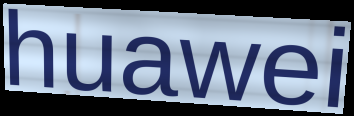
huawei